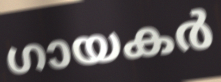
ഗായകർ